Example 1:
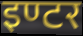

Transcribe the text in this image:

इण्टर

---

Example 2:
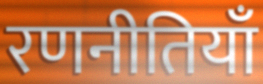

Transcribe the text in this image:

रणनीतियाँ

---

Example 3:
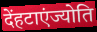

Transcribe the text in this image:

देंहटाएंज्योति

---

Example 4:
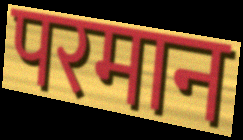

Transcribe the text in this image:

परमान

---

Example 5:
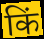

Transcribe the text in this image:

किं